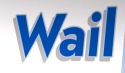
Wail